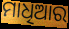
ମାଧିଆର